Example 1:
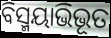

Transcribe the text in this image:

ବିସ୍ମୟାଭିଭୂତ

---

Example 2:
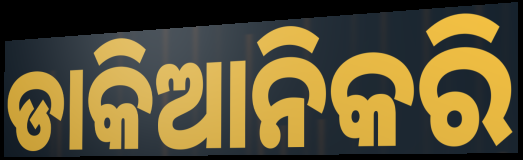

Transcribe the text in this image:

ଡାକିଆନିକରି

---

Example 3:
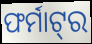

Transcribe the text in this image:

ଫର୍ମାଟ୍‌ର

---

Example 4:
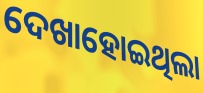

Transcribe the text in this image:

ଦେଖାହୋଇଥିଲା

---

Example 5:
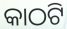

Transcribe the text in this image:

କାଠଟି